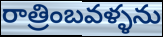
రాత్రింబవళ్ళను